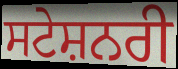
ਸਟੇਸ਼ਨਰੀ